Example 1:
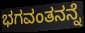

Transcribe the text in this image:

ಭಗವಂತನನ್ನೆ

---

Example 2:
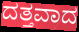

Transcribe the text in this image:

ದತ್ತವಾದ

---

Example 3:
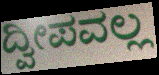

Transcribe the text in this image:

ದ್ವೀಪವಲ್ಲ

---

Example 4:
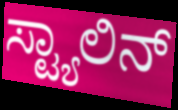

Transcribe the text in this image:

ಸ್ಟ್ಯಾಲಿನ್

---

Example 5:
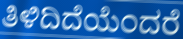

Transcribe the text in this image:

ತಿಳಿದಿದೆಯೆಂದರೆ